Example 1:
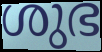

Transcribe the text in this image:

ശുഭ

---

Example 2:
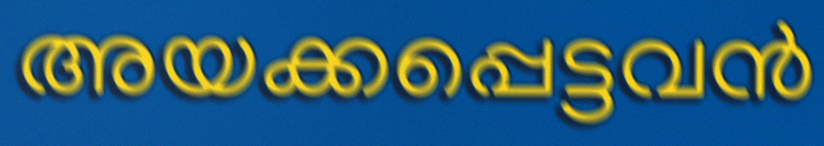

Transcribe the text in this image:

അയക്കപ്പെട്ടവൻ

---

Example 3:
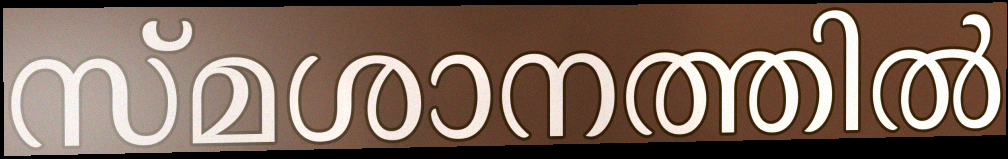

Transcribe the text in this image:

സ്മശാനത്തിൽ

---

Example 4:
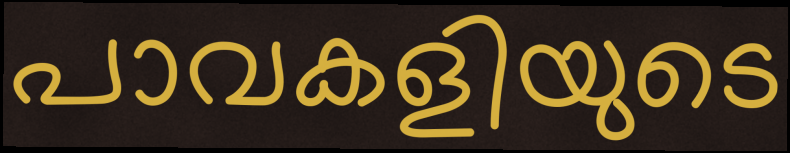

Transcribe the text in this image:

പാവകളിയുടെ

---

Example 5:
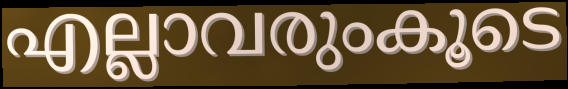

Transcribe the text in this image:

എല്ലാവരുംകൂടെ